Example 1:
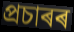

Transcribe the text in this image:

প্ৰচাৰৰ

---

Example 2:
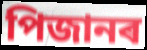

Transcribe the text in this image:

পিজানৰ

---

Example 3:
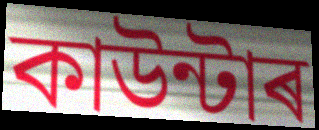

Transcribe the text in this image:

কাউন্টাৰ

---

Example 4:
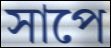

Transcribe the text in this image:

সাপে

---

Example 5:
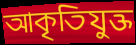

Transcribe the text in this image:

আকৃতিযুক্ত